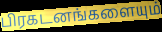
பிரகடனங்களையும்